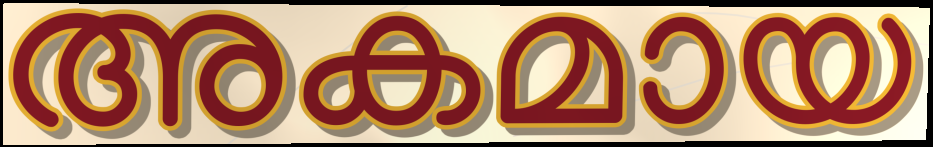
അകമായ